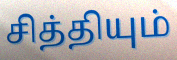
சித்தியும்